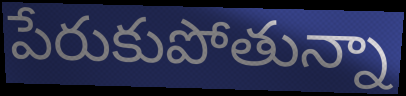
పేరుకుపోతున్నా